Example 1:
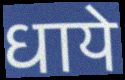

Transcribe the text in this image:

धाये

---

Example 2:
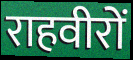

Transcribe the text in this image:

राहवीरों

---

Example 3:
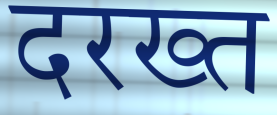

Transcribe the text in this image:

दरख्त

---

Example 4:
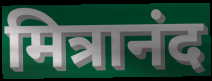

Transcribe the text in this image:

मित्रानंद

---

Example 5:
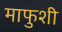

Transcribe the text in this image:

माफुशी